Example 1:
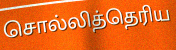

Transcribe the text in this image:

சொல்லித்தெரிய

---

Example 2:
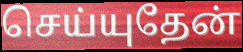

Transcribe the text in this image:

செய்யுதேன்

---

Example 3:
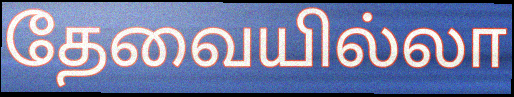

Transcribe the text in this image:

தேவையில்லா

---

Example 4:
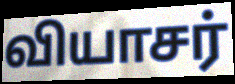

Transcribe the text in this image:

வியாசர்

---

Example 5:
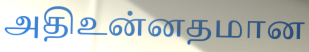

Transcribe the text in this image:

அதிஉன்னதமான